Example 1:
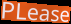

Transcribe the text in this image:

PLease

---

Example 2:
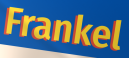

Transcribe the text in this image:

Frankel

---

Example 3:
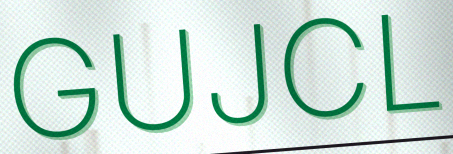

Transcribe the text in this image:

GUJCL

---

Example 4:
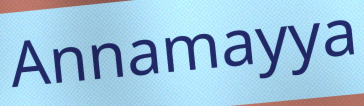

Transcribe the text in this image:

Annamayya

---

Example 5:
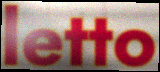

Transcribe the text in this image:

letto